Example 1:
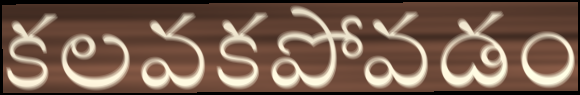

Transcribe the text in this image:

కలవకపోవడం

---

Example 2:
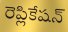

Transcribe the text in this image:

రెప్లికేషన్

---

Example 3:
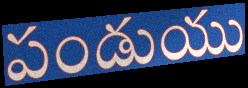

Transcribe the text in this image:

పండుయు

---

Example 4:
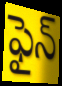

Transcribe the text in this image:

ఫైన్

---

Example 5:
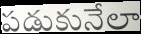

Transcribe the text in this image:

పడుకునేలా